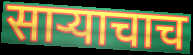
साऱ्याचाच